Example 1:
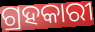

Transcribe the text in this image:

ଗ୍ରହକାରୀ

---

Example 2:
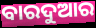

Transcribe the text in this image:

ବାରଦୁଆର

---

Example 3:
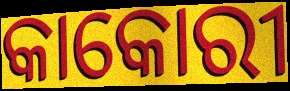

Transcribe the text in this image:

କାକୋରୀ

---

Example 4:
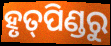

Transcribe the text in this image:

ହୃତ୍‌ପିଣ୍ଡରୁ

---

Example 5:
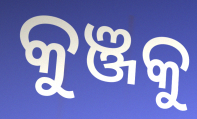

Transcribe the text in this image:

କୁଞ୍ଜକୁ